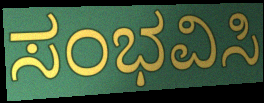
ಸಂಭವಿಸಿ